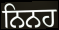
ਨਿਨਹ